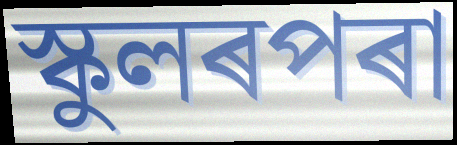
স্কুলৰপৰা